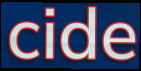
cide